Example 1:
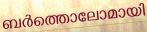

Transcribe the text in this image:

ബർത്തൊലോമായി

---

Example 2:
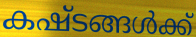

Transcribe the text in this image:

കഷ്ടങ്ങൾക്ക്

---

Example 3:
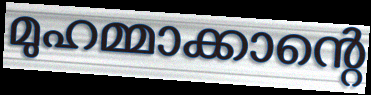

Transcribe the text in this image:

മുഹമ്മാക്കാന്റെ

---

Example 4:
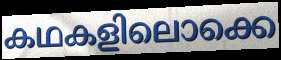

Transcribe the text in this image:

കഥകളിലൊക്കെ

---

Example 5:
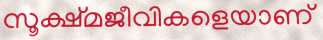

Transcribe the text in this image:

സൂക്ഷ്മജീവികളെയാണ്